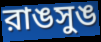
রাঙসুঙ